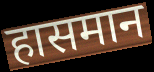
हासमान